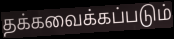
தக்கவைக்கப்படும்